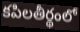
కపిలతీర్థంలో